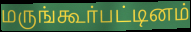
மருங்கூர்பட்டினம்